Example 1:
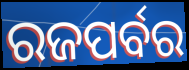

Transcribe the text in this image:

ରଜପର୍ବର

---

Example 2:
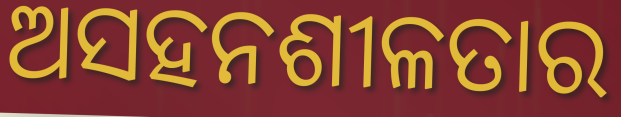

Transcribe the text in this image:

ଅସହନଶୀଳତାର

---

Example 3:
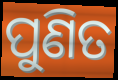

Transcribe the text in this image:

ପୁଣିତ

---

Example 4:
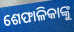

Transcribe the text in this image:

ଶେଫାଳିକାଙ୍କୁ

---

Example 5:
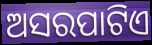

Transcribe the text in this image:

ଅସରପାଟିଏ